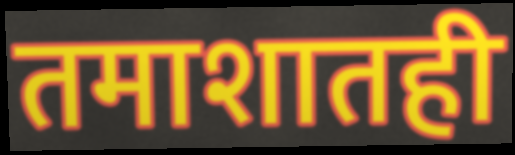
तमाशातही